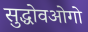
सुद्धोवओगो